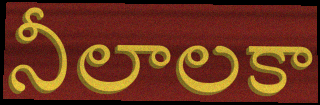
నీలాలకా